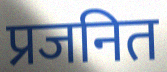
प्रजनित